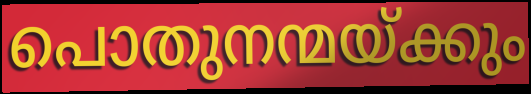
പൊതുനന്മയ്ക്കും